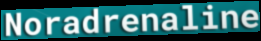
Noradrenaline